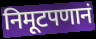
निमूटपणानं